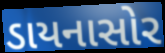
ડાયનાસોર